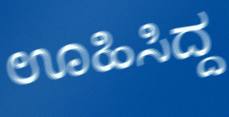
ಊಹಿಸಿದ್ದ